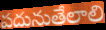
పదునుతేలాలి